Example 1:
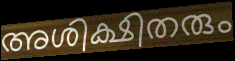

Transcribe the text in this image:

അശിക്ഷിതരും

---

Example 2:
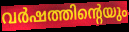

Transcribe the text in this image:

വർഷത്തിന്റെയും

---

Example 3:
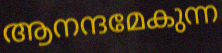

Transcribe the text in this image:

ആനന്ദമേകുന്ന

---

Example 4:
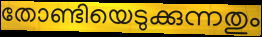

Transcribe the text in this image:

തോണ്ടിയെടുക്കുന്നതും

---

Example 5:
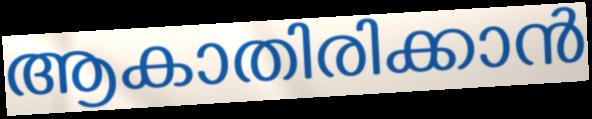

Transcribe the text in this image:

ആകാതിരിക്കാൻ